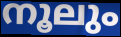
നൂലും